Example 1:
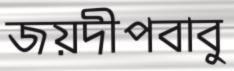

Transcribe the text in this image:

জয়দীপবাবু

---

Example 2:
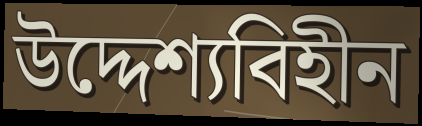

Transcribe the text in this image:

উদ্দেশ্যবিহীন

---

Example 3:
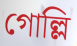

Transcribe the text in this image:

গোল্লি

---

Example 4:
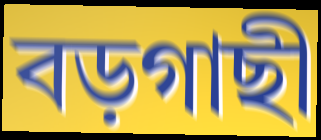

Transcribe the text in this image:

বড়গাছী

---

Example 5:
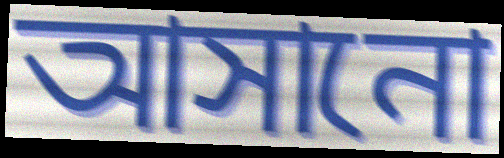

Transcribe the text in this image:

আসানো